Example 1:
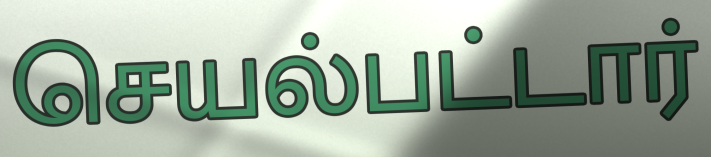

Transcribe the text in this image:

செயல்பட்டார்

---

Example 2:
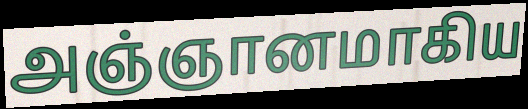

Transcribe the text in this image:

அஞ்ஞானமாகிய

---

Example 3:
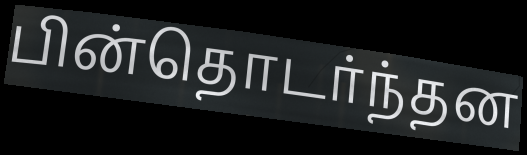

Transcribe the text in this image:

பின்தொடர்ந்தன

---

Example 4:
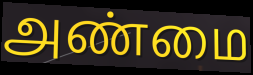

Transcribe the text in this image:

அண்மை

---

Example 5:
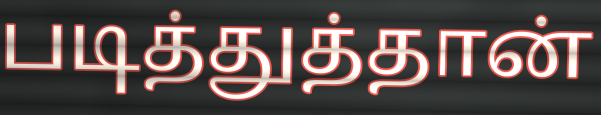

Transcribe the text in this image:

படித்துத்தான்